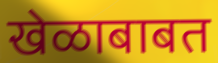
खेळाबाबत